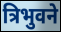
त्रिभुवने